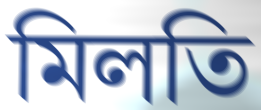
মিলতি